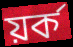
য়ৰ্ক